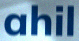
ahil